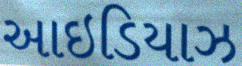
આઇડિયાઝ